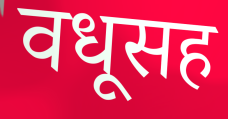
वधूसह